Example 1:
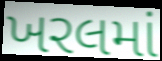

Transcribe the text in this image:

ખરલમાં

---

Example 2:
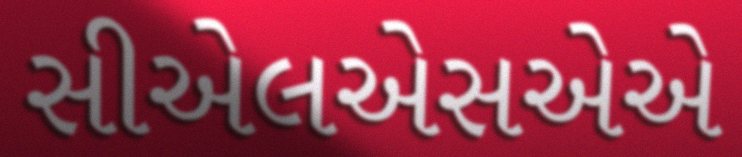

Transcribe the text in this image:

સીએલએસએએ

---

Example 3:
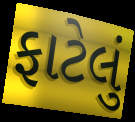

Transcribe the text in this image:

ફાટેલું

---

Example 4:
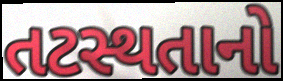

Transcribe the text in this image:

તટસ્થતાનો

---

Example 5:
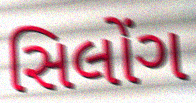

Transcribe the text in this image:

સિલોંગ